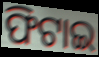
ଫିଟାଇ